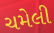
ચમેલી